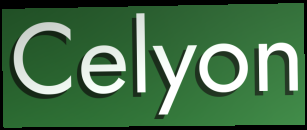
Celyon